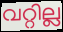
വറ്റില്ല